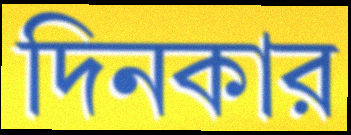
দিনকার